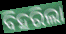
ବିହରିଲା